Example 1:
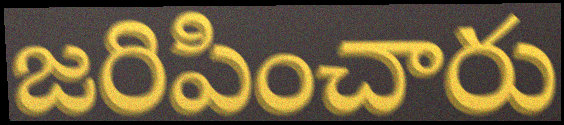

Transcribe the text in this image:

జరిపించారు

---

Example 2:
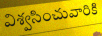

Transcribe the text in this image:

విశ్వసించువారికి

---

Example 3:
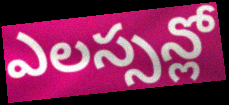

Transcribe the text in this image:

ఎలస్సన్లో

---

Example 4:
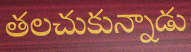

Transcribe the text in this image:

తలచుకున్నాడు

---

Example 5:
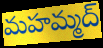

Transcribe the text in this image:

మహమ్మద్